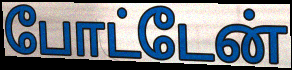
போட்டேன்